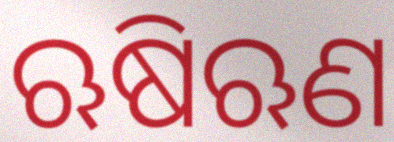
ଋଷିଋଣ